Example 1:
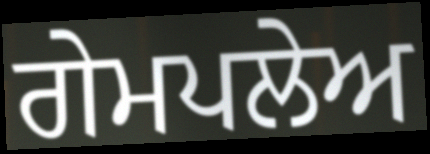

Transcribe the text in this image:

ਗੇਮਪਲੇਅ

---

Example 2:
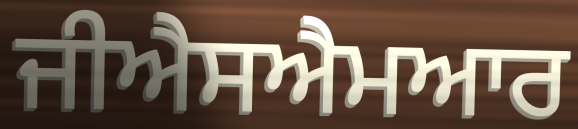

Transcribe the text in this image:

ਜੀਐਸਐਮਆਰ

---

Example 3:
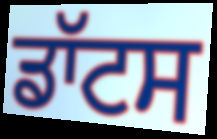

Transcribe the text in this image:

ਡਾੱਟਸ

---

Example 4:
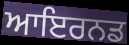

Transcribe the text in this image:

ਆਇਰਨਡ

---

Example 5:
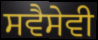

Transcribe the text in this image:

ਸਵੈਸੇਵੀ